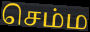
செம்ம